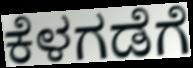
ಕೆಳಗಡೆಗೆ